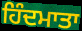
ਹਿੰਦਮਾਤਾ